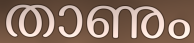
താണും